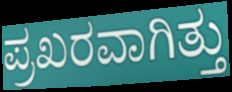
ಪ್ರಖರವಾಗಿತ್ತು